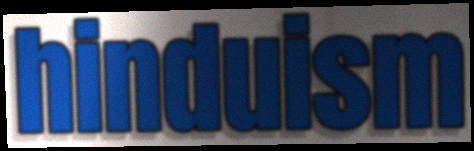
hinduism